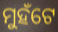
ମୁହଁଟେ